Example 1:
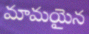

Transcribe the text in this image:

మామయైన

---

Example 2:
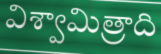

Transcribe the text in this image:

విశ్వామిత్రాది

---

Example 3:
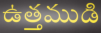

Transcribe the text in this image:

ఉత్తముడి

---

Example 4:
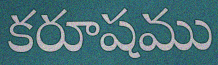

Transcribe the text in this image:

కరూషము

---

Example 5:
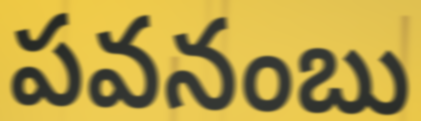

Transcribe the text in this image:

పవనంబు